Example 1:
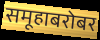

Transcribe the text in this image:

समूहाबरोबर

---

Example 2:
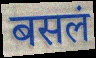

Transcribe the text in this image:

बसलं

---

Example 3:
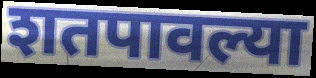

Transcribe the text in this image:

शतपावल्या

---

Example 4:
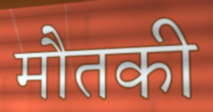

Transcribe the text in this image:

मौतकी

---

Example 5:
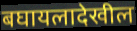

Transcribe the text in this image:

बघायलादेखील